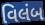
વિલંબ